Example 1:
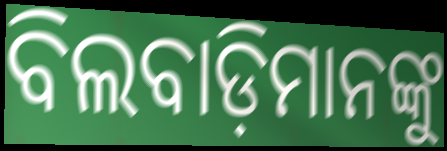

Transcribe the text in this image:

ବିଲବାଡ଼ିମାନଙ୍କୁ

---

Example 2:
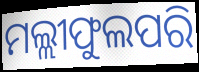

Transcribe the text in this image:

ମଲ୍ଲୀଫୁଲପରି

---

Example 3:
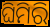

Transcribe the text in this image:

ଘିମିରି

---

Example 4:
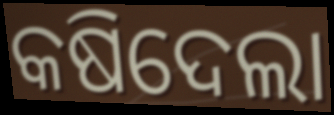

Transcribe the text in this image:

କଷିଦେଲା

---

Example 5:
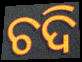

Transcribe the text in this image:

ଚଦି